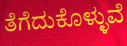
ತೆಗೆದುಕೊಳ್ಳುವೆ